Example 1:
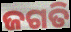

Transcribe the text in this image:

ଜଗତି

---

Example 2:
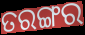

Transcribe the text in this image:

ତରଙ୍ଗର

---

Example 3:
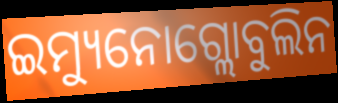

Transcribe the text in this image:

ଇମ୍ୟୁନୋଗ୍ଲୋବୁଲିନ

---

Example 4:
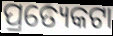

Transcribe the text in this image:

ପ୍ରତ୍ୟେକଟା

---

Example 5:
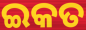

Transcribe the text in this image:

ଇକତ